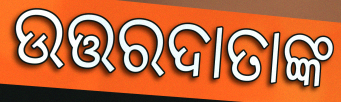
ଉତ୍ତରଦାତାଙ୍କ